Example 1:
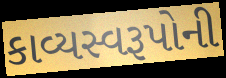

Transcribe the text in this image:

કાવ્યસ્વરૂપોની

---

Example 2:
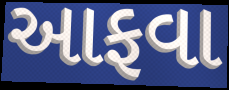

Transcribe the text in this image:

આફવા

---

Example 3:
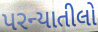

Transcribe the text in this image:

પરન્યાતીલો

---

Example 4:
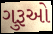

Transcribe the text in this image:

ગુરૂઓ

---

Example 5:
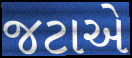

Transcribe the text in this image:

જટાએ